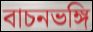
বাচনভঙ্গি